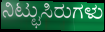
ನಿಟ್ಟುಸಿರುಗಳು